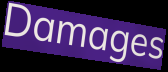
Damages